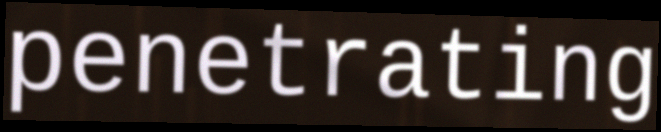
penetrating